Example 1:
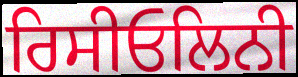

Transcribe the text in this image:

ਰਿਸੀਓਲਿਨੀ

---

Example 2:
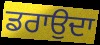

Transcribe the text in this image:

ਡਰਾਉਦਾ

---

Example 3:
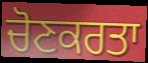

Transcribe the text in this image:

ਚੋਣਕਰਤਾ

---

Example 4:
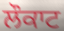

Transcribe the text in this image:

ਲੌਕਾਟ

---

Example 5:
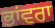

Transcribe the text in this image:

ਭਾਂਵਰਾ